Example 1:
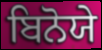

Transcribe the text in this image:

ਬਿਨੋਯੇ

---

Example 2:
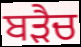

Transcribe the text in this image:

ਬੜੈਚ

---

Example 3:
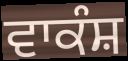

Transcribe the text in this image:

ਵਾਕੰਸ਼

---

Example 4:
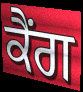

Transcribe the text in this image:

ਕੈਂਗ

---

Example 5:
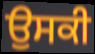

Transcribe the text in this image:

ਉਸਕੀ